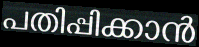
പതിപ്പിക്കാൻ